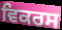
ਵਿਕਰਸ